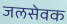
जलसेवक